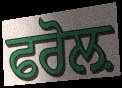
ਫਰੋਲ਼